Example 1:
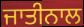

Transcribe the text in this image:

ਜਾਤੀਨਾਲ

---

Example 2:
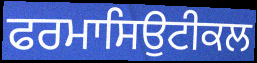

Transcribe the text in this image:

ਫਰਮਾਸਿਉਟੀਕਲ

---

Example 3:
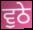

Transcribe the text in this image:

ਵੁਠੇ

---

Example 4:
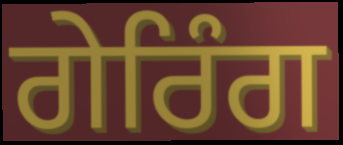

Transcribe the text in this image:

ਗੇਰਿੰਗ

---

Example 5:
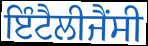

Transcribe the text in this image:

ਇੰਟੈਲੀਜੈਂਸੀ